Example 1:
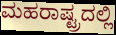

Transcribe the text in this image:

ಮಹರಾಷ್ಟ್ರದಲ್ಲಿ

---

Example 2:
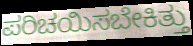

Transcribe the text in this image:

ಪರಿಚಯಿಸಬೇಕಿತ್ತು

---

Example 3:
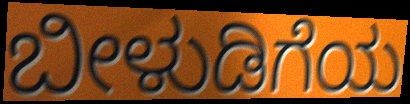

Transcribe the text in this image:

ಬೀಳುಡಿಗೆಯ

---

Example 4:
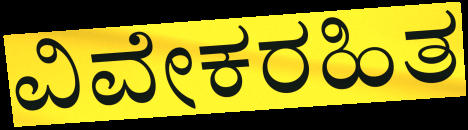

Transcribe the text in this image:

ವಿವೇಕರಹಿತ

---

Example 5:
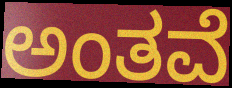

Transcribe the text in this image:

ಅಂತವೆ